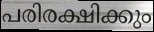
പരിരക്ഷിക്കും